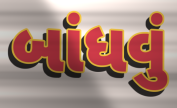
બાંધવું